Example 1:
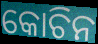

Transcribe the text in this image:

କୋଚିନ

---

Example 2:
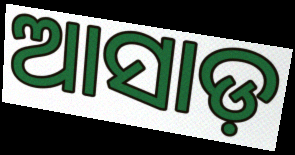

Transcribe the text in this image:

ଆସାଡ଼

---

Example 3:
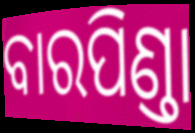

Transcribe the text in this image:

ବାରପିଣ୍ଡା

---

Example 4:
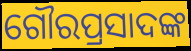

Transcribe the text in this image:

ଗୌରପ୍ରସାଦଙ୍କ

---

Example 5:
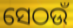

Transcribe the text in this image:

ସେଠଉଁ